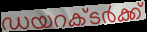
ഡയറക്ടർക്ക്